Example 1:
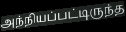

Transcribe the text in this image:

அந்நியப்பட்டிருந்த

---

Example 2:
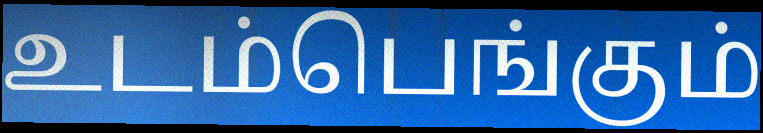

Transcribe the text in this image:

உடம்பெங்கும்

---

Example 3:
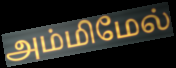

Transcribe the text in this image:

அம்மிமேல்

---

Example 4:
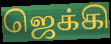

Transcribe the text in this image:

ஜெக்கி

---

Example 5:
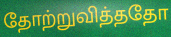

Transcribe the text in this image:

தோற்றுவித்ததோ